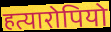
हत्यारोपियो